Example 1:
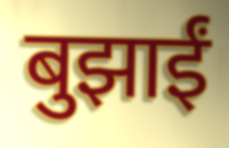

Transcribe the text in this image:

बुझाईं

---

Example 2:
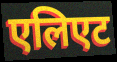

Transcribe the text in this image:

एलिएट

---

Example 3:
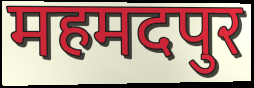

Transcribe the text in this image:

महमदपुर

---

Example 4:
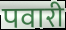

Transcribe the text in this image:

पवारी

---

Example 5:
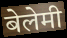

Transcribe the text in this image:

बेलेमी